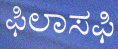
ಫಿಲಾಸಫಿ